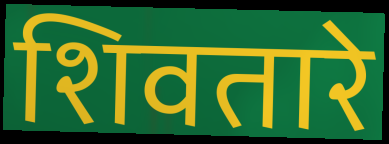
शिवतारे